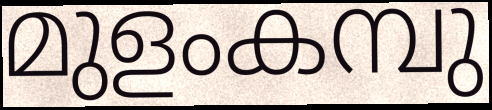
മുളംകമ്പു